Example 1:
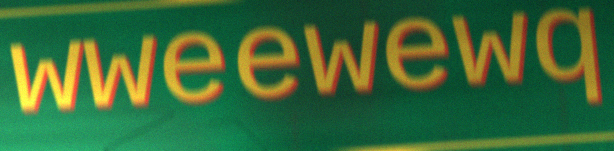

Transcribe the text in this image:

wweewewq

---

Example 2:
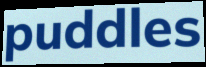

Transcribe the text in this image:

puddles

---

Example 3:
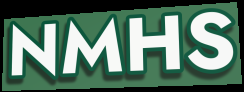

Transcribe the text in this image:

NMHS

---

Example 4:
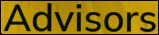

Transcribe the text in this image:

Advisors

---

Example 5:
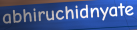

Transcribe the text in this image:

abhiruchidnyate